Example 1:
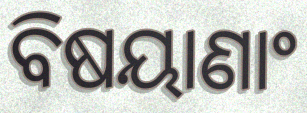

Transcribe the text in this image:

ବିଷୟାଣାଂ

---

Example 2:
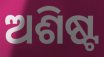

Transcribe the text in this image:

ଅଶିଷ୍ଟ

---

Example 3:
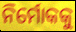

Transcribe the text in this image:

ନିର୍ମୋକକୁ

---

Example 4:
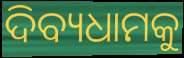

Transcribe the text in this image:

ଦିବ୍ୟଧାମକୁ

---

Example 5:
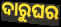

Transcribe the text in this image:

ଦାରୁଘର